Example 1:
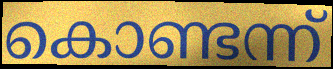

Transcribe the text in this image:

കൊണ്ടന്ന്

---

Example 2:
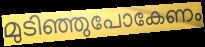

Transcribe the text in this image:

മുടിഞ്ഞുപോകേണം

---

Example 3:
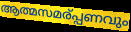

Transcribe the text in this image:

ആത്മസമര്പ്പണവും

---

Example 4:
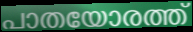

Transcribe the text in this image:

പാതയോരത്ത്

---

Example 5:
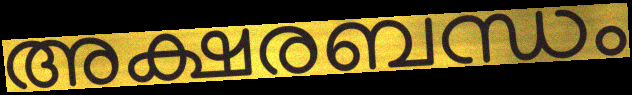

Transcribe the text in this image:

അക്ഷരബന്ധം